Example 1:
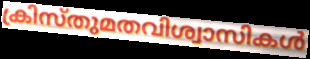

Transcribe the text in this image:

ക്രിസ്തുമതവിശ്വാസികൾ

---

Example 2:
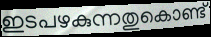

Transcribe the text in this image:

ഇടപഴകുന്നതുകൊണ്ട്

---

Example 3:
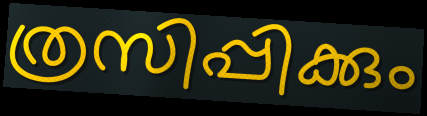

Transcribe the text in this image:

ത്രസിപ്പിക്കും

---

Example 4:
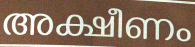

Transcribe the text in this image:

അക്ഷീണം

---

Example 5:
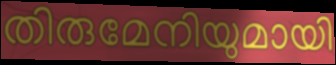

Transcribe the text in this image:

തിരുമേനിയുമായി